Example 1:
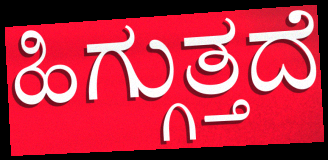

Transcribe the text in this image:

ಹಿಗ್ಗುತ್ತದೆ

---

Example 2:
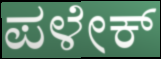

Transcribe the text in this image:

ಪಳೇಕ್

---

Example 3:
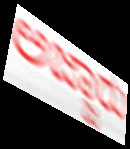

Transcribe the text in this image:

ಅಜ್ಜಾರು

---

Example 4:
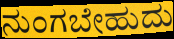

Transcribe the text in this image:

ನುಂಗಬೇಹುದು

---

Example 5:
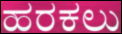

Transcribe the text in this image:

ಹರಕಲು